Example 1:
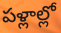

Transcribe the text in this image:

పళ్లాల్లో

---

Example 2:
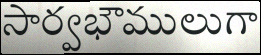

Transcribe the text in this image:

సార్వభౌములుగా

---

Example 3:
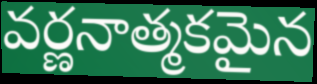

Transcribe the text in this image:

వర్ణనాత్మకమైన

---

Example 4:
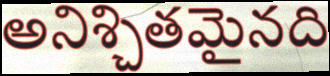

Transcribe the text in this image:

అనిశ్చితమైనది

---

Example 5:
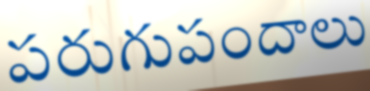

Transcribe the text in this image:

పరుగుపందాలు